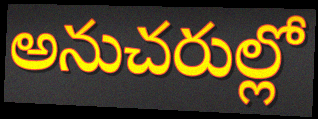
అనుచరుల్లో